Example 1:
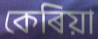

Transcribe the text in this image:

কেৰিয়া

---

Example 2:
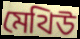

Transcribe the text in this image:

মেথিউ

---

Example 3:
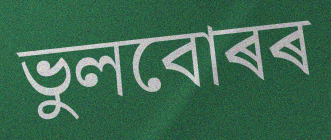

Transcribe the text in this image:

ভুলবোৰৰ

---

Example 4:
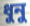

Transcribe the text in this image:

ধুনু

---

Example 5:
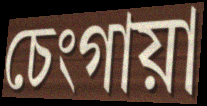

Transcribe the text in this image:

চেংগায়া